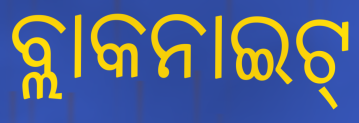
ବ୍ଲାକନାଇଟ୍